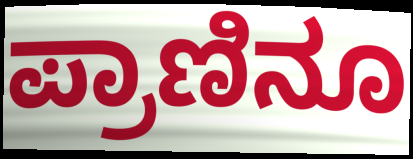
ಪ್ರಾಣಿನೂ